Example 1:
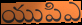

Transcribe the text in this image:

యుపిఎ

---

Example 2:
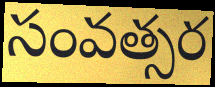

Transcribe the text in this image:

సంవత్సర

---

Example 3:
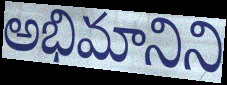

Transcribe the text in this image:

అభిమానిని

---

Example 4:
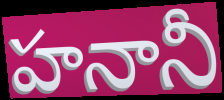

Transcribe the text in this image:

హనానీ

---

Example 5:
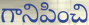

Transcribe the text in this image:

గానిపించి